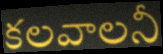
కలవాలనీ